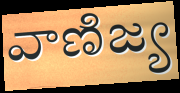
వాణిజ్య